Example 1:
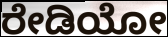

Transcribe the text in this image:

ರೇಡಿಯೋ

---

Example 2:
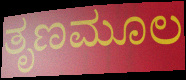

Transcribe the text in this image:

ತೃಣಮೂಲ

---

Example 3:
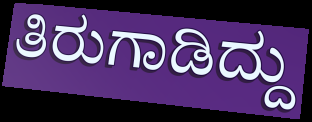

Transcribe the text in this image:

ತಿರುಗಾಡಿದ್ದು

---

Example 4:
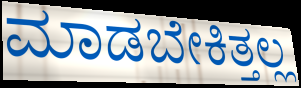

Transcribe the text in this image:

ಮಾಡಬೇಕಿತ್ತಲ್ಲ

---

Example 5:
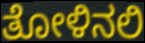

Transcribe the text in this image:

ತೋಳಿನಲಿ